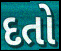
દતો